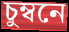
চুম্বনে